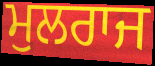
ਮੁਲਰਾਜ